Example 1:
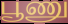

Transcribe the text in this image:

பூணு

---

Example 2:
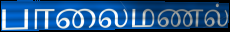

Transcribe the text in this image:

பாலைமணல்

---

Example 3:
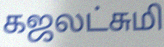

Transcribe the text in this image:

கஜலட்சுமி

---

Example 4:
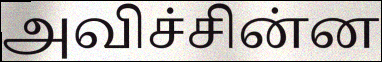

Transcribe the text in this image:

அவிச்சின்ன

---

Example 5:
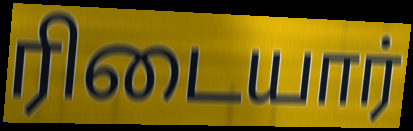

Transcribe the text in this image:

ரிடையார்